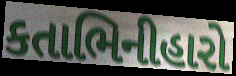
કતાભિનીહારો